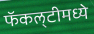
फॅकल्टीमध्ये